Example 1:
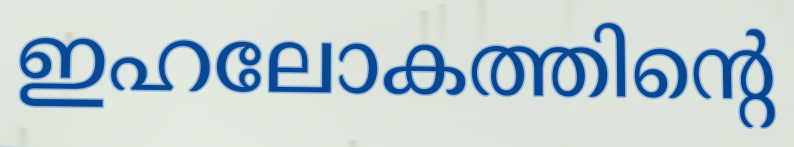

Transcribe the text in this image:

ഇഹലോകത്തിന്റെ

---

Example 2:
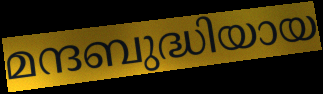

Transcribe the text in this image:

മന്ദബുദ്ധിയായ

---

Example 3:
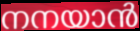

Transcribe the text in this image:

നനയാൻ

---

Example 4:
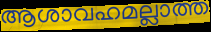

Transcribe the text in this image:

ആശാവഹമല്ലാത്ത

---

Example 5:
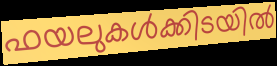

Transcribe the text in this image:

ഫയലുകൾക്കിടയിൽ